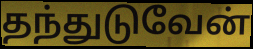
தந்துடுவேன்